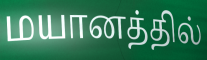
மயானத்தில்